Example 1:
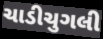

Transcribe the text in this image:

ચાડીચુગલી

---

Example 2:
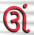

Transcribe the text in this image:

ઊં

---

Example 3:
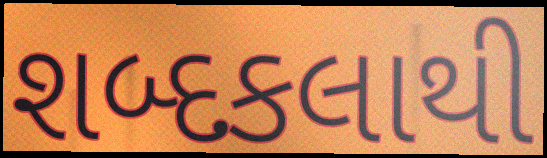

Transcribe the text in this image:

શબ્દકલાથી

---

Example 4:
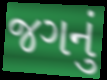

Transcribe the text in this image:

જગનું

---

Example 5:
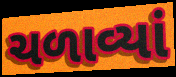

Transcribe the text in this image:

ચળાવ્યાં